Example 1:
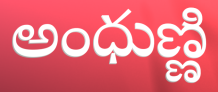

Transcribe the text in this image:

అంధుణ్ణి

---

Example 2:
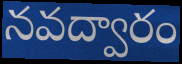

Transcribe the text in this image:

నవద్వారం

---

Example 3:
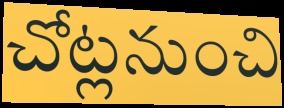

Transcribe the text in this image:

చోట్లనుంచి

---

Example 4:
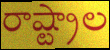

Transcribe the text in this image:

రాష్ట్రాల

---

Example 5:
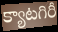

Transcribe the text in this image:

క్యాటగిరీ